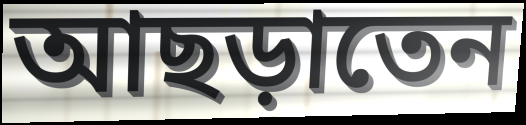
আছড়াতেন